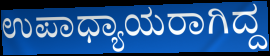
ಉಪಾಧ್ಯಾಯರಾಗಿದ್ದ